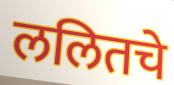
ललितचे